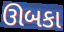
ઊબકા